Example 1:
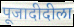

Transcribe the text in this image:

पूजादीदीला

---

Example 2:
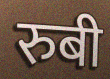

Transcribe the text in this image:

रुबी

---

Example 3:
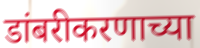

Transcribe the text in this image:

डांबरीकरणाच्या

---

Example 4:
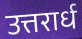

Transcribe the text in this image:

उत्तरार्ध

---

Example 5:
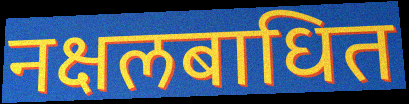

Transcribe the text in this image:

नक्षलबाधित